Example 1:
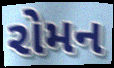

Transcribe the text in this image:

રોમન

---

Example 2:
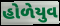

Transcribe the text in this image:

હોળેયુવ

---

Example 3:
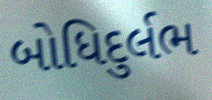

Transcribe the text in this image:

બોધિદુર્લભ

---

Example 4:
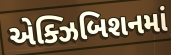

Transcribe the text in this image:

એક્ઝિબિશનમાં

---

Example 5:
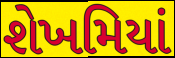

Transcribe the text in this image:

શેખમિયાં